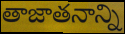
తాజాతనాన్ని